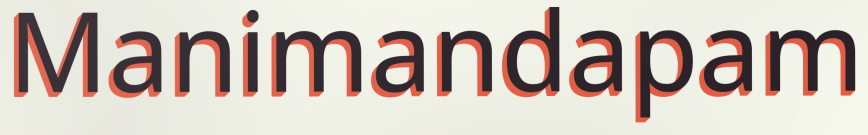
Manimandapam